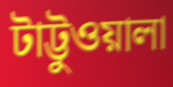
টাট্টুওয়ালা